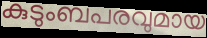
കുടുംബപരവുമായ